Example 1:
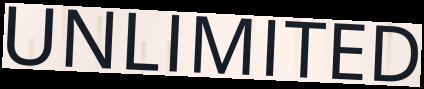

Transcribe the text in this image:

UNLIMITED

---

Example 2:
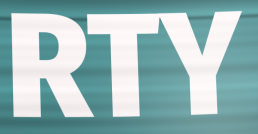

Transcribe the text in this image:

RTY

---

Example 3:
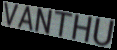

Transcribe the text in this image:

VANTHU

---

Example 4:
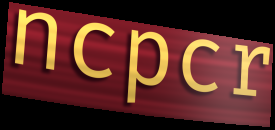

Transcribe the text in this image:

ncpcr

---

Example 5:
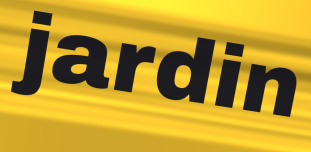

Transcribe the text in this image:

jardin